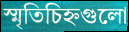
স্মৃতিচিহ্নগুলো